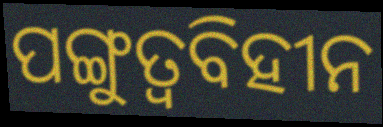
ପଙ୍ଗୁତ୍ୱବିହୀନ